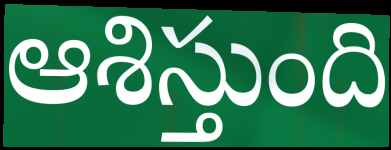
ఆశిస్తుంది